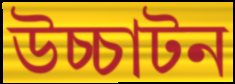
উচ্চাটন